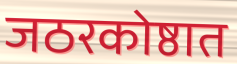
जठरकोष्ठात